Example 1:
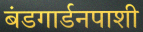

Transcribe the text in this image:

बंडगार्डनपाशी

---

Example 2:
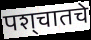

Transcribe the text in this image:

पश्चातचे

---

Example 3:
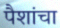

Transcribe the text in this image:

पैशांचा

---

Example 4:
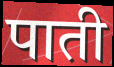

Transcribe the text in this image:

पाती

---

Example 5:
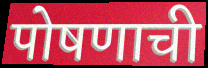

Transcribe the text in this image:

पोषणाची